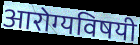
आरोग्यविषयी